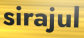
sirajul